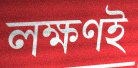
লক্ষণই